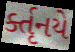
ર્ક્તૃનયે